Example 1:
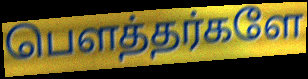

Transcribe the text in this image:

பௌத்தர்களே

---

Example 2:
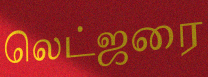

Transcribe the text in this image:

லெட்ஜரை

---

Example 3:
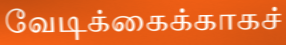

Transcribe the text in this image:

வேடிக்கைக்காகச்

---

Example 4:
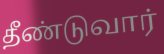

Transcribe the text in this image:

தீண்டுவார்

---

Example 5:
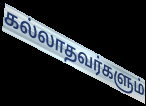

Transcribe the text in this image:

கல்லாதவர்களும்